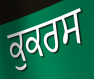
ਕੁਕਰਸ